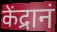
केंद्रानं